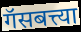
गॅसबत्त्या